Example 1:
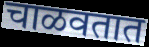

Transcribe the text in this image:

चाळवतात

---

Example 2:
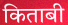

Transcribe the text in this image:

किताबी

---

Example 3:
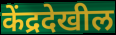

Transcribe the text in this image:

केंद्रदेखील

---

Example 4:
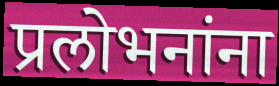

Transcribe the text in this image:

प्रलोभनांना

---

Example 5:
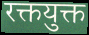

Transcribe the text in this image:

रक्तयुक्त